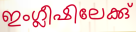
ഇംഗ്ലീഷിലേക്കു്